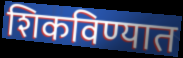
शिकविण्यात